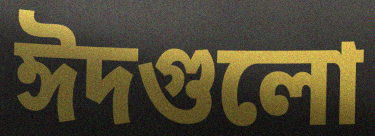
ঈদগুলো